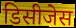
डिसीजेस